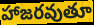
హాజరవుతూ